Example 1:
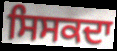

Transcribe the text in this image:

ਸਿਸਕਦਾ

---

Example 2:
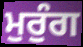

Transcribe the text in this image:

ਮੁਰੁੰਗ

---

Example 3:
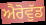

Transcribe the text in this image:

ਐਰੋਵੁੱਡ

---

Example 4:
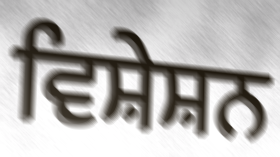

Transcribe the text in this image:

ਵਿਸ਼ੇਸ਼ਨ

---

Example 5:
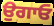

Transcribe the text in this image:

ਉਗਾਓ